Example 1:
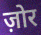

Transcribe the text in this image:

ज़ोर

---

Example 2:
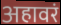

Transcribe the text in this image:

अहावरं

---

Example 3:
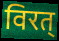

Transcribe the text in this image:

विरत्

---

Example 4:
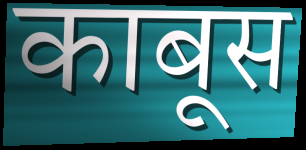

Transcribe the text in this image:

काबूस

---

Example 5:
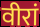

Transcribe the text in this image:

वीरां